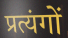
प्रत्यंगों